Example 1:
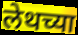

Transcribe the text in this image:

लेथच्या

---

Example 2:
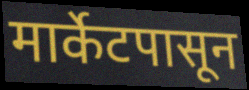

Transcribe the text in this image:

मार्केटपासून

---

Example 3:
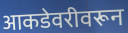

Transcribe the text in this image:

आकडेवरीवरून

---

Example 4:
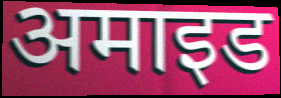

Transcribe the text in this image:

अमाइड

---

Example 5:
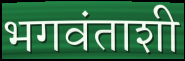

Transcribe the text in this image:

भगवंताशी